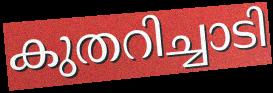
കുതറിച്ചാടി